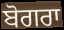
ਬੋਗਰਾ